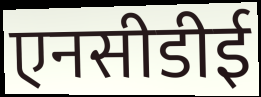
एनसीडीई